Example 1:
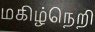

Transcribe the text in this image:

மகிழ்நெறி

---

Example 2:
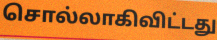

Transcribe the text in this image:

சொல்லாகிவிட்டது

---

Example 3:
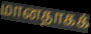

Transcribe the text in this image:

மானதாகக்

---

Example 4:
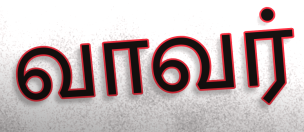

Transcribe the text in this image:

வாவர்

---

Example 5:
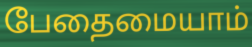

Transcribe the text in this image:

பேதைமையாம்